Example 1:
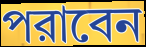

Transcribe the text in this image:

পরাবেন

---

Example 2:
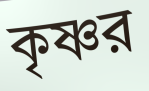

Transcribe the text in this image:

কৃষ্ণর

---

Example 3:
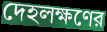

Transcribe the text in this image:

দেহলক্ষণের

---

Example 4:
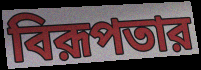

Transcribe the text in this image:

বিরূপতার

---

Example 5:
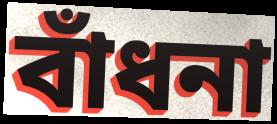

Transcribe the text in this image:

বাঁধনা